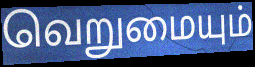
வெறுமையும்